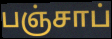
பஞ்சாப்